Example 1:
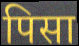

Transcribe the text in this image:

पिसा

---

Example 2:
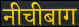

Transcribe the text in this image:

नीचीबाग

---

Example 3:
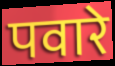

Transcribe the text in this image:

पवारे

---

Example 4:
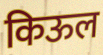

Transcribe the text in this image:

किऊल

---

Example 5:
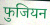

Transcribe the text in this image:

फुजियन